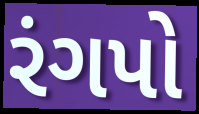
રંગપો